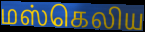
மஸ்கெலிய